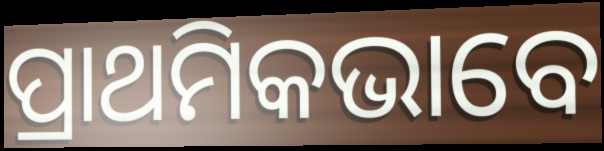
ପ୍ରାଥମିକଭାବେ